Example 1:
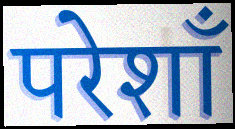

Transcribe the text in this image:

परेशाँ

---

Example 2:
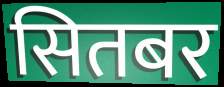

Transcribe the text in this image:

सितबर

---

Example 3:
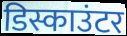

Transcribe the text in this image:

डिस्काउंटर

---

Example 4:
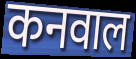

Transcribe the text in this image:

कनवाल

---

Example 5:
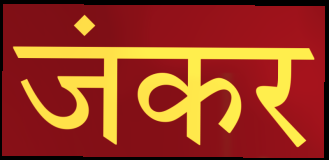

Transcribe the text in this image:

जंकर